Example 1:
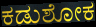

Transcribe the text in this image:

ಕಡುಶೋಕ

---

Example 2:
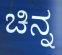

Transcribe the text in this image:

ಚಿನ್ನ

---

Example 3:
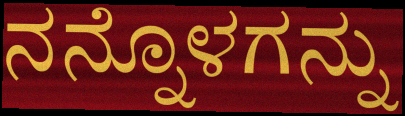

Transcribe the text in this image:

ನನ್ನೊಳಗನ್ನು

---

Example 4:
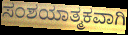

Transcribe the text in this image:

ಸಂಶಯಾತ್ಮಕವಾಗಿ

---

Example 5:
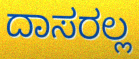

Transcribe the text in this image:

ದಾಸರಲ್ಲ